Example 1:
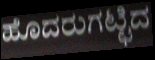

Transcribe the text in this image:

ಹೊದರುಗಟ್ಟಿದ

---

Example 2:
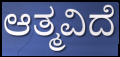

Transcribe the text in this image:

ಆತ್ಮವಿದೆ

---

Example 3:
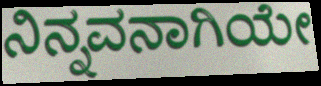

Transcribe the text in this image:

ನಿನ್ನವನಾಗಿಯೇ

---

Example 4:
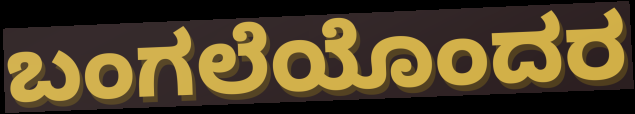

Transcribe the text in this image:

ಬಂಗಲೆಯೊಂದರ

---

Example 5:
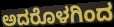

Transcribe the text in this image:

ಅದರೊಳಗಿಂದ